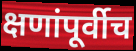
क्षणांपूर्वीच